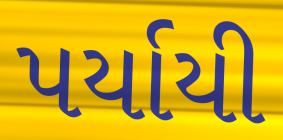
પર્યાયી